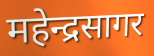
महेन्द्रसागर